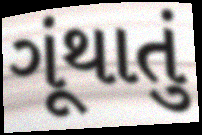
ગૂંથાતું